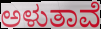
ಅಳುತಾವೆ